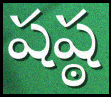
షష్ఠ